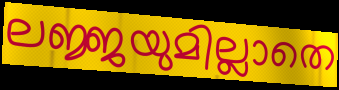
ലജ്ജയുമില്ലാതെ